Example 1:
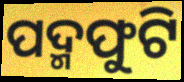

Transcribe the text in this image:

ପଦ୍ମଫୁଟି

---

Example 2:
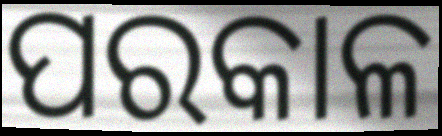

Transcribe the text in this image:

ପରକାଳ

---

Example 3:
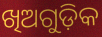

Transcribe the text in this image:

ଖିଅଗୁଡ଼ିକ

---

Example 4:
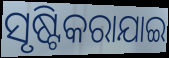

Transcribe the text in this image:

ସୃଷ୍ଟିକରାଯାଇ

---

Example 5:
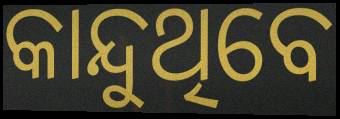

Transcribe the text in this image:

କାନ୍ଦୁଥିବେ